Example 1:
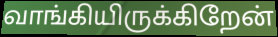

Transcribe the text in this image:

வாங்கியிருக்கிறேன்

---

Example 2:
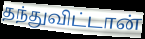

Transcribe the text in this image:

தந்துவிட்டான்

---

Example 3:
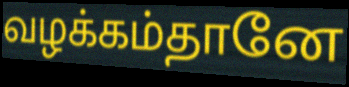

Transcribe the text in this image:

வழக்கம்தானே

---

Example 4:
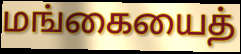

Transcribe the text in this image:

மங்கையைத்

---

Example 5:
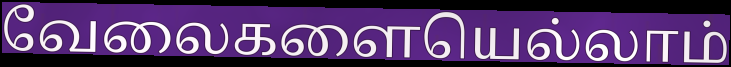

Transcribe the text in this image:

வேலைகளையெல்லாம்